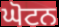
ਘੋਟਨ